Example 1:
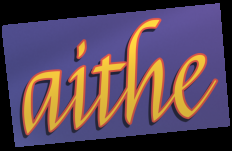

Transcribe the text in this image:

aithe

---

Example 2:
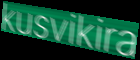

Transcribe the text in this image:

kusvikira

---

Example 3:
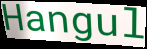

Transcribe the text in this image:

Hangul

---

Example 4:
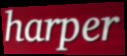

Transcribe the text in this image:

harper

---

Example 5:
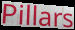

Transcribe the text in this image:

Pillars